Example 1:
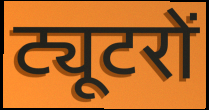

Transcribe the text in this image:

ट्यूटरों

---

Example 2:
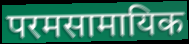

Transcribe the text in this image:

परमसामायिक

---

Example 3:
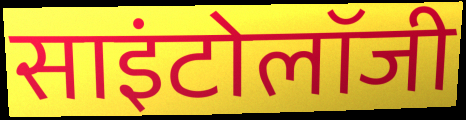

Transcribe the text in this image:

साइंटोलॉजी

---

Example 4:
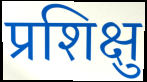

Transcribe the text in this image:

प्रशिक्षु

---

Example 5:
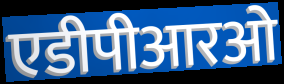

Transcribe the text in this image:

एडीपीआरओ